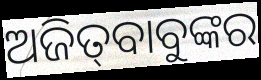
ଅଜିତ୍‍ବାବୁଙ୍କର